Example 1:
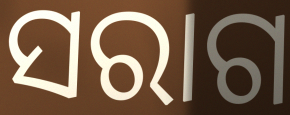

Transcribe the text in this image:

ସରାଗ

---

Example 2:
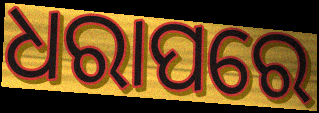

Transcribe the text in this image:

ଧରାପରେ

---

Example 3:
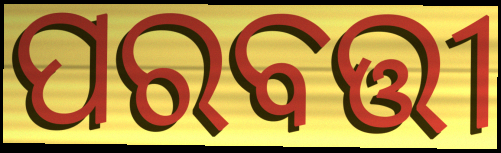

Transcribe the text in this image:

ପରବତ୍ତୀ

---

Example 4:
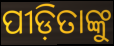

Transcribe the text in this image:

ପୀଡ଼ିତାଙ୍କୁ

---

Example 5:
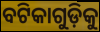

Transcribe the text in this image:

ବଟିକାଗୁଡ଼ିକୁ